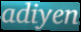
adiyen